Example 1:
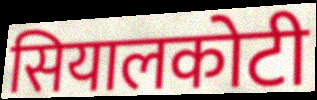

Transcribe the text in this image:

सियालकोटी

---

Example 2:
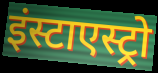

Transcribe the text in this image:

इंस्टाएस्ट्रो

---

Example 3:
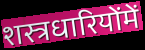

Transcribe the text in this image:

शस्त्रधारियोंमें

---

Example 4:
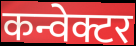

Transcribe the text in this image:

कन्वेक्टर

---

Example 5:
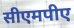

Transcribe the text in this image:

सीएमपीए